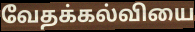
வேதக்கல்வியை